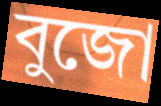
বুজো